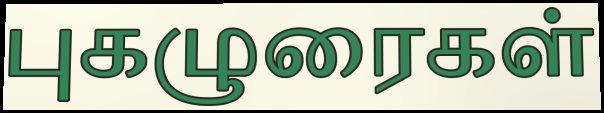
புகழுரைகள்